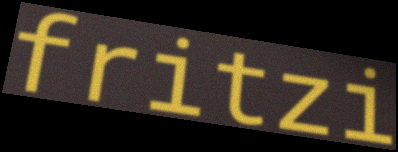
fritzi